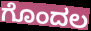
ಗೊಂದಲ